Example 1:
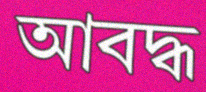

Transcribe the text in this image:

আবদ্ধ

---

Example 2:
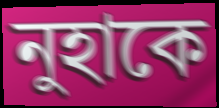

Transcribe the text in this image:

নুহাকে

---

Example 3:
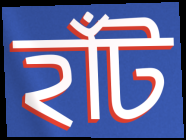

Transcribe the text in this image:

হাঁট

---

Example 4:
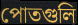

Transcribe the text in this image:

পোতগুলি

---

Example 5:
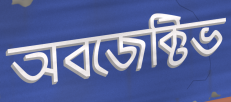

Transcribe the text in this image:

অবজেক্টিভ